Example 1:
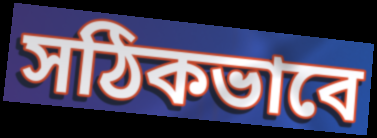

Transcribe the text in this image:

সঠিকভাবে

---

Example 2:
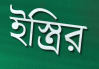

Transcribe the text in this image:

ইস্ত্রির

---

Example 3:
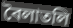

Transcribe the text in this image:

বৈলাতলি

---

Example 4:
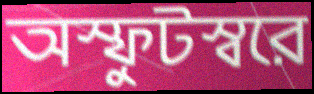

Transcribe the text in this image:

অস্ফুটস্বরে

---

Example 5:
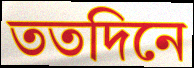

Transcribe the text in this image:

ততদিনে